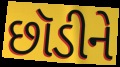
છૉડીને